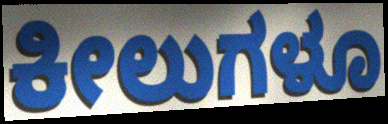
ಕೀಲುಗಳೂ